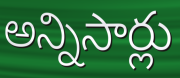
అన్నిసార్లు